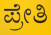
ಪ್ರೇತಿ